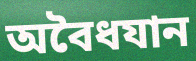
অবৈধযান